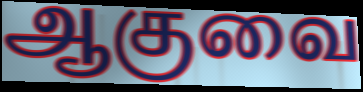
ஆகுவை